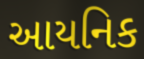
આયનિક